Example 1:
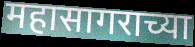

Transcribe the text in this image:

महासागराच्या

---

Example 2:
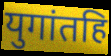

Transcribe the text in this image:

युगांतहि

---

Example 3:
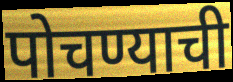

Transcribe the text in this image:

पोचण्याची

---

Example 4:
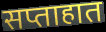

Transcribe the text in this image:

सप्ताहात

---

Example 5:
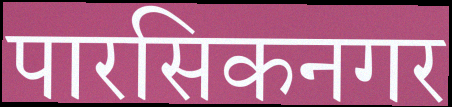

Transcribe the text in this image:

पारसिकनगर